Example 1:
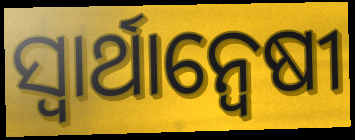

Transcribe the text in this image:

ସ୍ବାର୍ଥାନ୍ବେଷୀ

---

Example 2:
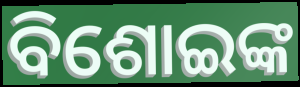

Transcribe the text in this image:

ବିଶୋଇଙ୍କ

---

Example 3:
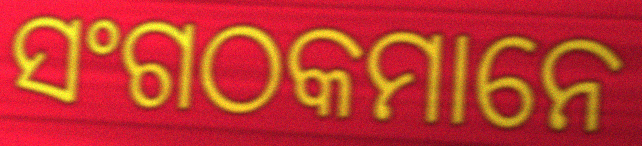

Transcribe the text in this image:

ସଂଗଠକମାନେ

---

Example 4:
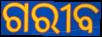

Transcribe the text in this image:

ଗରୀବ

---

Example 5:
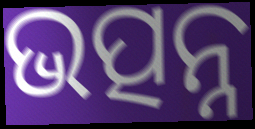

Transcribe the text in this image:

ଭତ୍ପନ୍ନ